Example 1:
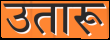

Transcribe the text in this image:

उतारू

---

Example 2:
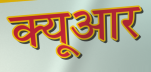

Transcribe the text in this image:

क्‍यूआर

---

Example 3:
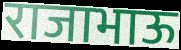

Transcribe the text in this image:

राजाभाऊ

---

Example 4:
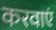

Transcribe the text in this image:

करवाएं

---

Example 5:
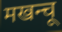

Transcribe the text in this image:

मखन्चू